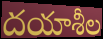
దయాశీల